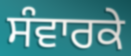
ਸੰਵਾਰਕੇ